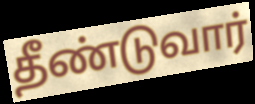
தீண்டுவார்